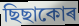
ছিছাকোৰ